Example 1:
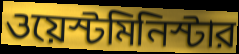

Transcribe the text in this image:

ওয়েস্টমিনিস্টার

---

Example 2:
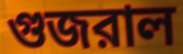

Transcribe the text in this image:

গুজরাল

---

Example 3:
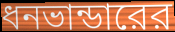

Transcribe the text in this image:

ধনভান্ডারের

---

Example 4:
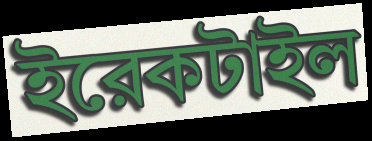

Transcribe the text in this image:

ইরেকটাইল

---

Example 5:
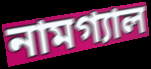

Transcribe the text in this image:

নামগ্যাল